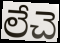
లేచె